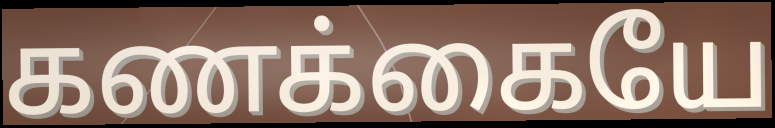
கணக்கையே